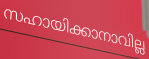
സഹായിക്കാനാവില്ല